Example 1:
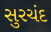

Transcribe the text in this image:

સુરચંદ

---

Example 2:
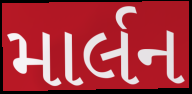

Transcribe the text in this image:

માર્લન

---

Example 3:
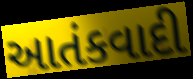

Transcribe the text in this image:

આતંકવાદી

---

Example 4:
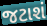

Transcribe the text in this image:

જટાશં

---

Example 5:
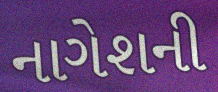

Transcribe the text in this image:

નાગેશની